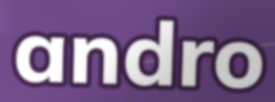
andro